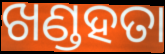
ଖଣ୍ଡହତା